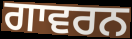
ਗਾਵਰਨ